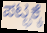
ಪಟ್ಟಕ್ಕೆ